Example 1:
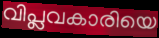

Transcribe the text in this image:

വിപ്ലവകാരിയെ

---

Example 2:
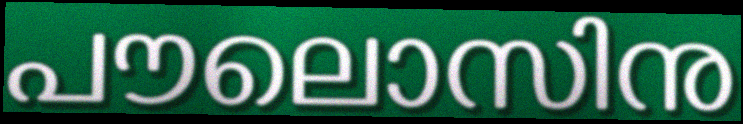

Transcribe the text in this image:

പൗലൊസിനു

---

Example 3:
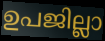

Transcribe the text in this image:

ഉപജില്ലാ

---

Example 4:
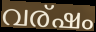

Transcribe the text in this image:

വര്ഷം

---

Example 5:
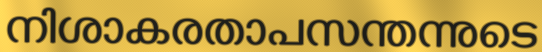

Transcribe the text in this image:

നിശാകരതാപസന്തന്നുടെ